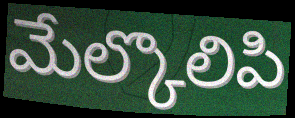
మేల్కొలిపి